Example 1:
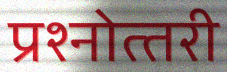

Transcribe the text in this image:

प्रश्‍नोत्‍तरी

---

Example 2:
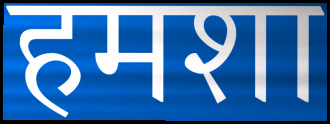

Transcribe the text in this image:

हमशा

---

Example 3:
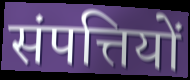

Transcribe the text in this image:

संपत्तियों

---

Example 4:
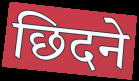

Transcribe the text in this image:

छिदने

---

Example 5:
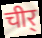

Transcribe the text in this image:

चीर्